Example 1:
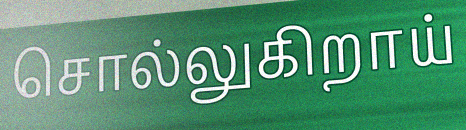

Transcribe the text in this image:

சொல்லுகிறாய்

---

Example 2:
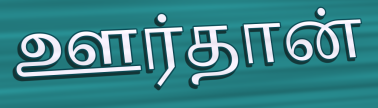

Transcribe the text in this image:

ஊர்தான்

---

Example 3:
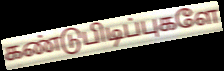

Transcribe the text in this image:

கண்டுபிடிப்புகளே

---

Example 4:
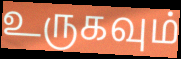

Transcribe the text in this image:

உருகவும்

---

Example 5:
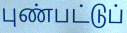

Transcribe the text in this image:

புண்பட்டுப்